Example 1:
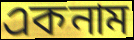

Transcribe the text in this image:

একনাম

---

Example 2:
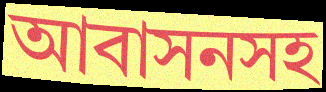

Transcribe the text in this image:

আবাসনসহ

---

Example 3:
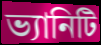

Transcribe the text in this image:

ভ্যানিটি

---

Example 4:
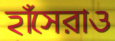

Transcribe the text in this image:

হাঁসেরাও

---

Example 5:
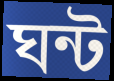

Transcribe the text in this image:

ঘন্ট